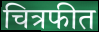
चित्रफीत